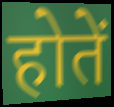
होतें